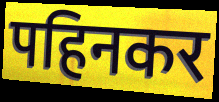
पहिनकर